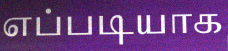
எப்படியாக